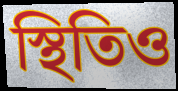
স্থিতিও